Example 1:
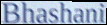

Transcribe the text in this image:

Bhashani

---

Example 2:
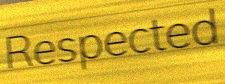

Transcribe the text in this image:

Respected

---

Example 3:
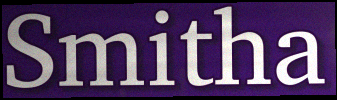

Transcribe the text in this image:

Smitha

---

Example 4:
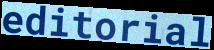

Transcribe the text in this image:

editorial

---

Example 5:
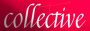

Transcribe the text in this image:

collective